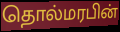
தொல்மரபின்